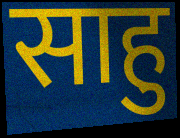
साहु